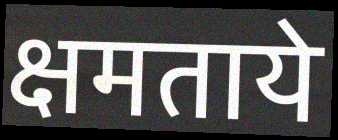
क्षमताये